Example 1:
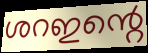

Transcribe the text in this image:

ശറഇന്റെ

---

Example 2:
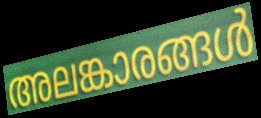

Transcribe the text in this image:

അലങ്കാരങ്ങൾ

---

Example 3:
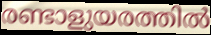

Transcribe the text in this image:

രണ്ടാളുയരത്തിൽ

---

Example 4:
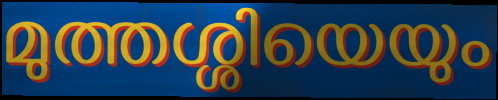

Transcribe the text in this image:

മുത്തശ്ശിയെയും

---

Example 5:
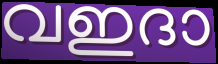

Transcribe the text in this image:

വഇദാ